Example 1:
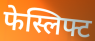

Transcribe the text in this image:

फेस्लिफ्ट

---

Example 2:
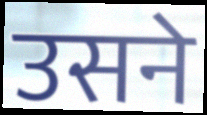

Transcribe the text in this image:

उसने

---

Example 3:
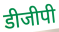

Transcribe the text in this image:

डीजीपी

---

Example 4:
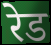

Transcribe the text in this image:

रेड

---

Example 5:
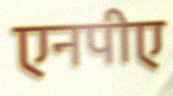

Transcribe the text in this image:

एनपीए